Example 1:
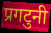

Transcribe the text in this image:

प्रगटुनी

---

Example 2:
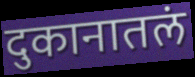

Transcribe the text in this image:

दुकानातलं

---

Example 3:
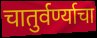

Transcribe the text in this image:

चातुर्वर्ण्याचा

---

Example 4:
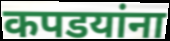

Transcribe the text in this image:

कपडयांना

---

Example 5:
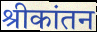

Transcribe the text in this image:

श्रीकांतन